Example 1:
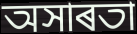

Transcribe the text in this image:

অসাৰতা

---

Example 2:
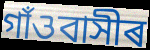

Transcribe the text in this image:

গাঁওবাসীৰ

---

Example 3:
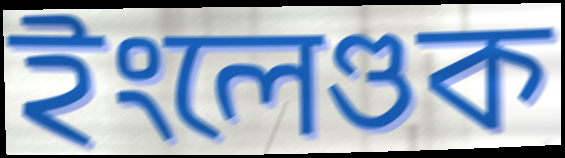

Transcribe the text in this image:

ইংলেণ্ডক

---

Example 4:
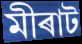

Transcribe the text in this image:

মীৰাট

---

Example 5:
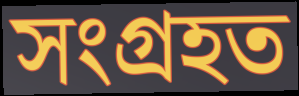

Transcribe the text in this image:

সংগ্ৰহত